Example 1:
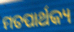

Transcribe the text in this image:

ମତପାର୍ଥକ୍ୟ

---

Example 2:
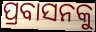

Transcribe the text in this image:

ପ୍ରବାସନକୁ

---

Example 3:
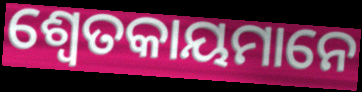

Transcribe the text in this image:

ଶ୍ୱେତକାୟମାନେ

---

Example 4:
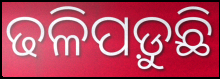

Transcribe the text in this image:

ଢଳିପଡ଼ୁଛି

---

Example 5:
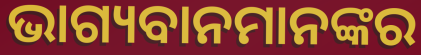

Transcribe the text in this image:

ଭାଗ୍ୟବାନମାନଙ୍କର